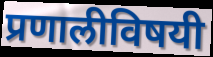
प्रणालीविषयी